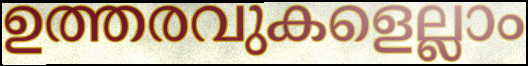
ഉത്തരവുകളെല്ലാം